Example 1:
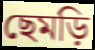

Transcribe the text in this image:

ছেমড়ি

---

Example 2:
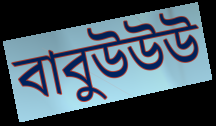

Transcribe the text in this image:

বাবুউউউ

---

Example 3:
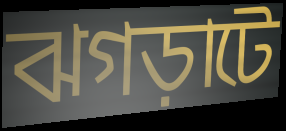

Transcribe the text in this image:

ঝগড়াটে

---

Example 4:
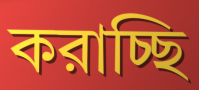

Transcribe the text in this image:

করাচ্ছি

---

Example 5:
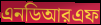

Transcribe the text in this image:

এনডিআরএফ